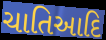
ચાતિઆદિ